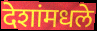
देशांमधले